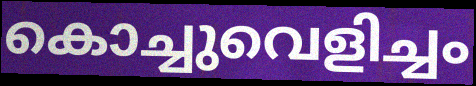
കൊച്ചുവെളിച്ചം